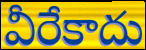
వీరేకాదు